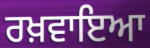
ਰਖ਼ਵਾਇਆ